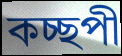
কচ্ছপী